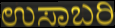
ಉಸಾಬರಿ